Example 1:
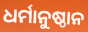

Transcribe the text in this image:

ଧର୍ମାନୁଷ୍ଠାନ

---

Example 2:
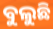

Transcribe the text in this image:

ବୁଲୁଛି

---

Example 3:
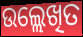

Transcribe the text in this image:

ଉଲ୍ଲେଖିତ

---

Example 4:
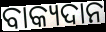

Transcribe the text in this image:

ବାକ୍ୟଦାନ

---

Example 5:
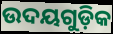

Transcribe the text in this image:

ଉଦୟଗୁଡ଼ିକ